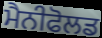
ਮੈਨੀਫੋਲਡ